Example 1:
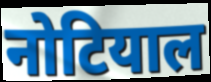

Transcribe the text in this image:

नोटियाल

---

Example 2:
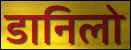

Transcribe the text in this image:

डानिलो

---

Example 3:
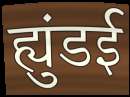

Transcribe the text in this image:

ह्युंडई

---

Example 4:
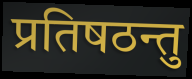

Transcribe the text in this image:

प्रतिषठन्तु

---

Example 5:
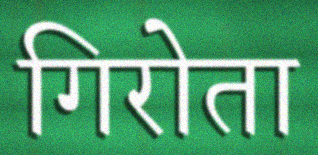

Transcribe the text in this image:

गिरोता